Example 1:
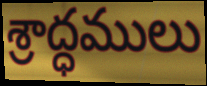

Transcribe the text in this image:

శ్రాద్ధములు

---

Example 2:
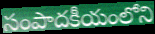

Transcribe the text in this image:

సంపాదకీయంలోని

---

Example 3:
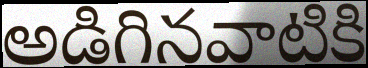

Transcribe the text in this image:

అడిగినవాటికి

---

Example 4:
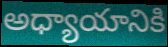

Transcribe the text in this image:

అధ్యాయానికి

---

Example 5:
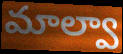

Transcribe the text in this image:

మాల్వా